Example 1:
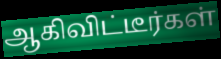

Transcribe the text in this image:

ஆகிவிட்டீர்கள்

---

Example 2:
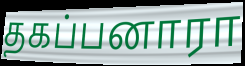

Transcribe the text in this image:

தகப்பனாரா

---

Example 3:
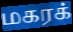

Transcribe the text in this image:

மகரக்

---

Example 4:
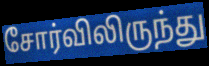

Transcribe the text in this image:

சோர்விலிருந்து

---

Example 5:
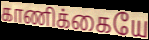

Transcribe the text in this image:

காணிக்கையே